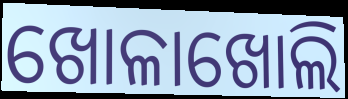
ଖୋଳାଖୋଲି